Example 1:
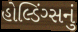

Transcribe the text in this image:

હોલ્ડિંગ્સનું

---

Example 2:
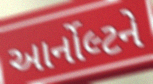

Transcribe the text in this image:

આર્નોલ્ટને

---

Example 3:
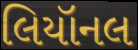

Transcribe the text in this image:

લિયૉનલ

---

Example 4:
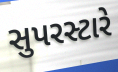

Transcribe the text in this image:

સુપરસ્ટારે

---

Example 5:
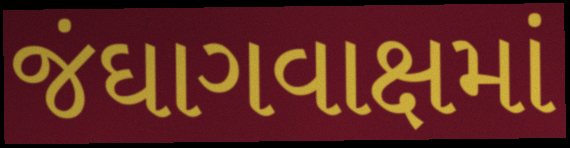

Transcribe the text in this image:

જંઘાગવાક્ષમાં